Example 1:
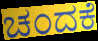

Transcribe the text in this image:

ಚಂದಕೆ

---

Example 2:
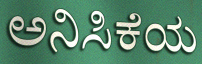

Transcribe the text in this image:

ಅನಿಸಿಕೆಯ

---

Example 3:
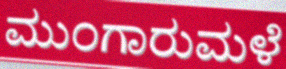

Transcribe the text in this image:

ಮುಂಗಾರುಮಳೆ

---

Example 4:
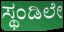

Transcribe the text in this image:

ಸ್ಥಂಡಿಲೇ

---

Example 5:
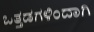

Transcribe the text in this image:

ಒತ್ತಡಗಳಿಂದಾಗಿ